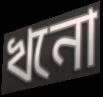
খনো